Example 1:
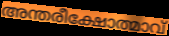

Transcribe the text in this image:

അന്തരീക്ഷോത്മാവ്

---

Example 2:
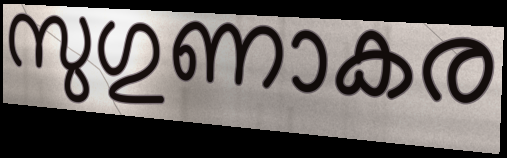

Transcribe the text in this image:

സുഗുണാകര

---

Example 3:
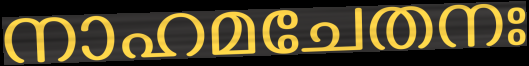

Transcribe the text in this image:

നാഹമചേതനഃ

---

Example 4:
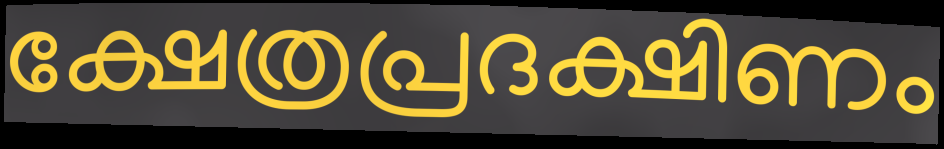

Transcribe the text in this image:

ക്ഷേത്രപ്രദക്ഷിണം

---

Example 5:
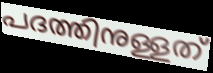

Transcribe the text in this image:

പദത്തിനുള്ളത്